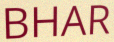
BHAR